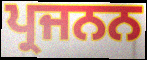
ਪ੍ਰਜਨਨ